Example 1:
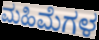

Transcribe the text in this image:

ಮಹಿಮೆಗಳ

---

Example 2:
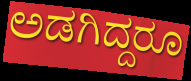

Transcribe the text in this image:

ಅಡಗಿದ್ದರೂ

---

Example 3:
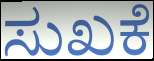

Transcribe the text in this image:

ಸುಖಕೆ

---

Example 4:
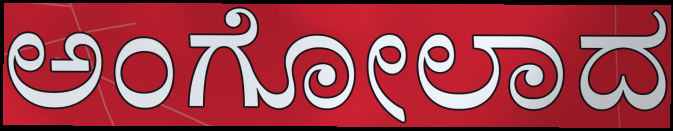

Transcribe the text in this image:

ಅಂಗೋಲಾದ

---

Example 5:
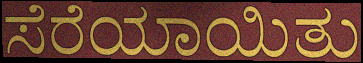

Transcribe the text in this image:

ಸೆರೆಯಾಯಿತು